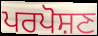
ਪਰਪੋਸ਼ਣ